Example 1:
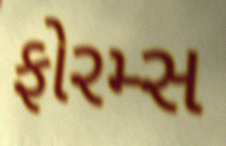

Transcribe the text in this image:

ફોરમ્સ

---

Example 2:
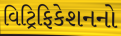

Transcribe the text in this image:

વિટ્રિફિકેશનનો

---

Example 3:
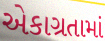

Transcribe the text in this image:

એકાગ્રતામાં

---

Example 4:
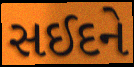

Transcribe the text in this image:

સઈદને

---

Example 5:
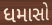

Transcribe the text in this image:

ધમાસો